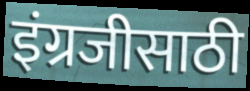
इंग्रजीसाठी